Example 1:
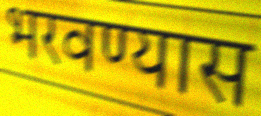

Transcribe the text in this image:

भरवण्यास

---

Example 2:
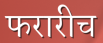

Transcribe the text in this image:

फरारीच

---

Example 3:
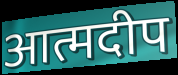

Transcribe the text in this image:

आत्मदीप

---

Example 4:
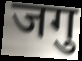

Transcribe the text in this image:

जगु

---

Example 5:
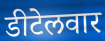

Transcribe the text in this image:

डीटेलवार